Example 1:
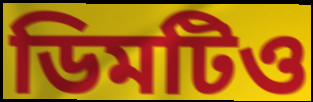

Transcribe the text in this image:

ডিমটিও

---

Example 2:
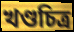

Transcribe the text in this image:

খণ্ডচিত্র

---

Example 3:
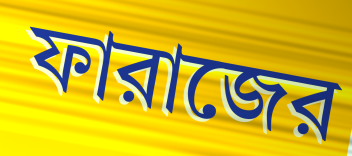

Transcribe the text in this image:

ফারাজের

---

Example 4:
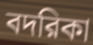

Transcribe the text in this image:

বদরিকা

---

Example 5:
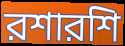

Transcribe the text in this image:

রশারশি